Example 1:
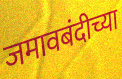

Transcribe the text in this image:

जमावबंदीच्या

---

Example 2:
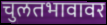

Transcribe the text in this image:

चुलतभावावर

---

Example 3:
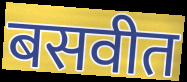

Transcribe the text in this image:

बसवीत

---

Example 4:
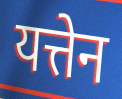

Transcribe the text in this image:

यत्तेन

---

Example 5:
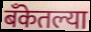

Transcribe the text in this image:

बँकेतल्या